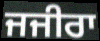
ਜਜੀਰਾ